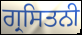
ਗ੍ਰਸਿਤਨੀ